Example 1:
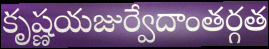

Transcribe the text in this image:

కృష్ణయజుర్వేదాంతర్గత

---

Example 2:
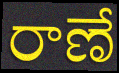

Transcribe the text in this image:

రాణే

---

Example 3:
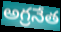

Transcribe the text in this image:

అగ్రనేత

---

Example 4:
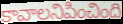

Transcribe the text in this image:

కావాలనిపించింది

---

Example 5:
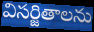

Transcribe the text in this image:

విసర్జితాలను